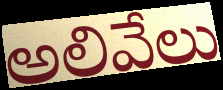
అలివేలు